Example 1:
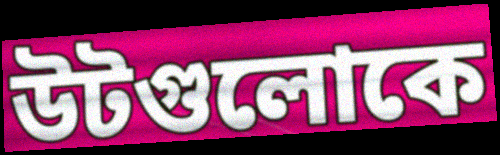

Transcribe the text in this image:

উটগুলোকে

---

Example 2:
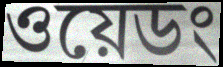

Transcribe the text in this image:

ওয়েডং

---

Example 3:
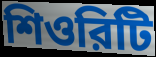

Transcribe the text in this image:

শিওরিটি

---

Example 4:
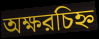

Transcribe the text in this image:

অক্ষরচিহ্ন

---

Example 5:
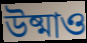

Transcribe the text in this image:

উষ্মাও